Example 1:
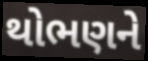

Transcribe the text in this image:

થોભણને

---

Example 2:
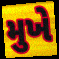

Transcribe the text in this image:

મુખે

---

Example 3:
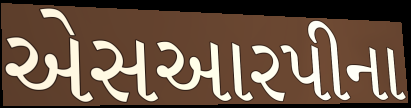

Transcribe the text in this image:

એસઆરપીના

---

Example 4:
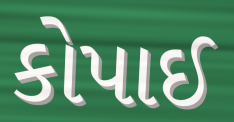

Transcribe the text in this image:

કોપાઈ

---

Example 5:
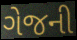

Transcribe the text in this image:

ગેજની